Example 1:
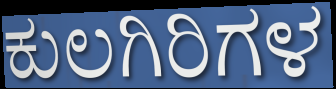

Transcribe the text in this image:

ಕುಲಗಿರಿಗಳ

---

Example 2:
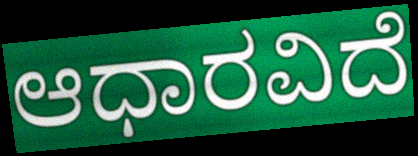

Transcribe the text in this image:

ಆಧಾರವಿದೆ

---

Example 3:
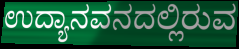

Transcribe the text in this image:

ಉದ್ಯಾನವನದಲ್ಲಿರುವ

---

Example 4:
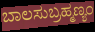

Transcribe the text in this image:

ಬಾಲಸುಬ್ರಹ್ಮಣ್ಯಂ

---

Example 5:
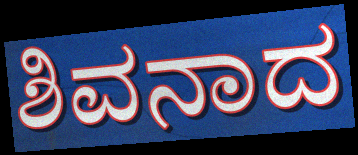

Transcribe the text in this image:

ಶಿವನಾದ